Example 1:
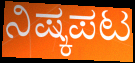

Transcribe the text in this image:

ನಿಷ್ಕಪಟ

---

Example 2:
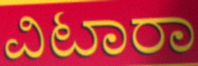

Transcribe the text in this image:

ವಿಟಾರಾ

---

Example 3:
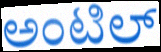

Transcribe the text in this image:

ಅಂಟಿಲ್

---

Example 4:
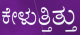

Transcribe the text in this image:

ಕೇಳುತ್ತಿತ್ತು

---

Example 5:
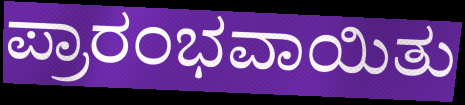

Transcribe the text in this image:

ಪ್ರಾರಂಭವಾಯಿತು